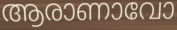
ആരാണാവോ